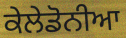
ਕੇਲੇਡੋਨੀਆ